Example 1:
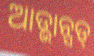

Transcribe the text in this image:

ଆଡ୍ଭାନ୍ସଡ୍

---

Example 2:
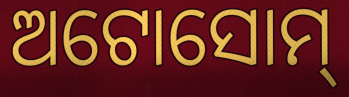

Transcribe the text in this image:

ଅଟୋସୋମ୍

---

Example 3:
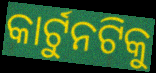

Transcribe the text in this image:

କାର୍ଟୁନଟିକୁ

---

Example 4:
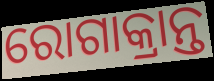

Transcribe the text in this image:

ରୋଗାକ୍ରାନ୍ତ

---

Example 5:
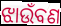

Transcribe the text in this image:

ଝାଉଁବଣ